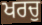
ਖਰਚੁ